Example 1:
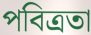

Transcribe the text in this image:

পবিত্রতা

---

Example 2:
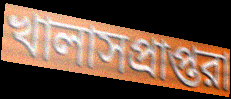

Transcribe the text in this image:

খালাসপ্রাপ্তরা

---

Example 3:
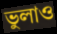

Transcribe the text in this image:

ভুলাও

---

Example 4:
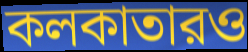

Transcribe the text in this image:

কলকাতারও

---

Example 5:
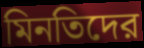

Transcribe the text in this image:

মিনতিদের